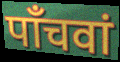
पाँचवां